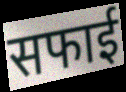
सफाई